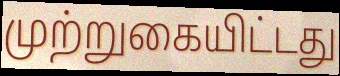
முற்றுகையிட்டது